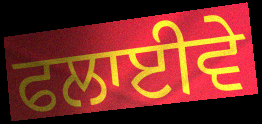
ਫਲਾਈਵੇ